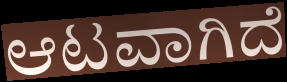
ಆಟವಾಗಿದೆ